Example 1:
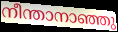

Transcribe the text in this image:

നീന്താനാഞ്ഞു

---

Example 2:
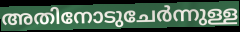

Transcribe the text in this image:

അതിനോടുചേർന്നുള്ള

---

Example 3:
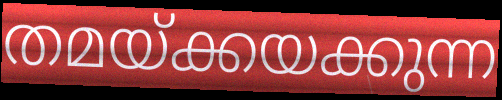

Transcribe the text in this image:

തമയ്ക്കയക്കുന്ന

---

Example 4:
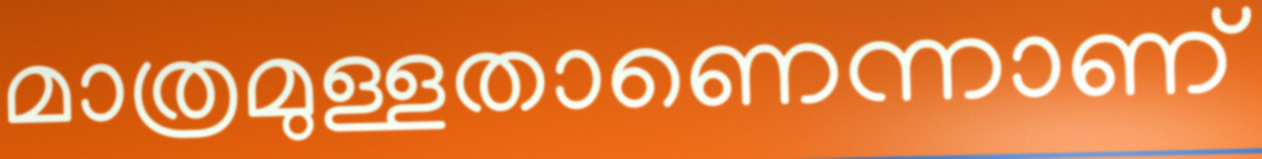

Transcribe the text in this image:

മാത്രമുള്ളതാണെന്നാണ്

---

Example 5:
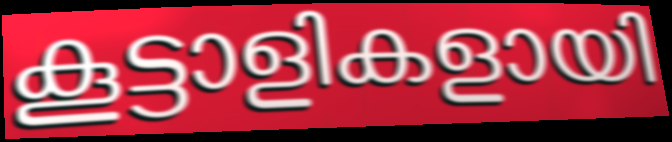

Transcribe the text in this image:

കൂട്ടാളികളായി